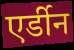
एर्डीन